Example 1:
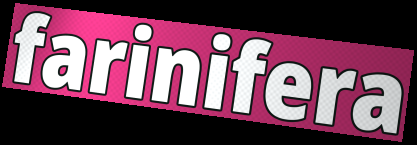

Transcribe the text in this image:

farinifera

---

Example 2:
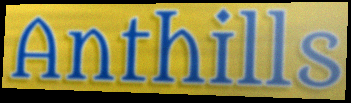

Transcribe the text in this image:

Anthills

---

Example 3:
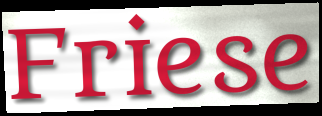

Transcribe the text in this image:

Friese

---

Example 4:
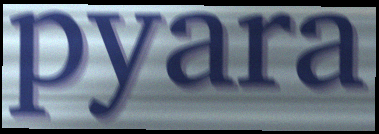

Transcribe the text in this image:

pyara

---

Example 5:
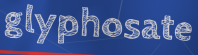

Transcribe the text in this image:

glyphosate